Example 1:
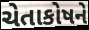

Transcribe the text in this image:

ચેતાકોષને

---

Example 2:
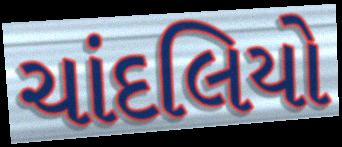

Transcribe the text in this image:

ચાંદલિયો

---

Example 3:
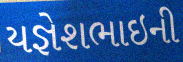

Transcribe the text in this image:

યજ્ઞેશભાઇની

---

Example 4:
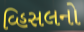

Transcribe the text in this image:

વ્હિસલનો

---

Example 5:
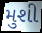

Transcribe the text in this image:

મુશી